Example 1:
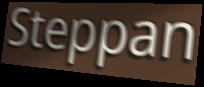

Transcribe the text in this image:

Steppan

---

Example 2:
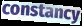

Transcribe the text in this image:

constancy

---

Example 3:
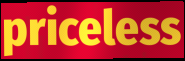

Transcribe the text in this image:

priceless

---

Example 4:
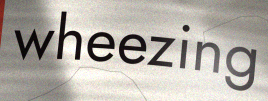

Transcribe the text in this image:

wheezing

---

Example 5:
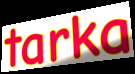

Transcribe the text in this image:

tarka